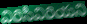
విరిసీవిరియని